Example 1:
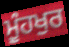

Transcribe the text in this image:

ਮੂੰਹਖੁਰ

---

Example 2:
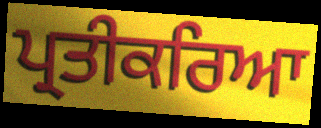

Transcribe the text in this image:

ਪ੍ਰਤੀਕਰਿਆ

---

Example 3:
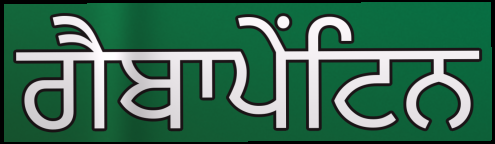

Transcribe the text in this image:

ਗੈਬਾਪੇਂਟਿਨ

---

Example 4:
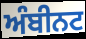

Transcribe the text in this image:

ਅੰਬੀਨਟ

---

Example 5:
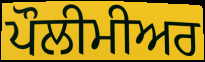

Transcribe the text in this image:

ਪੌਲੀਮੀਅਰ